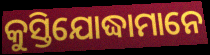
କୁସ୍ତିଯୋଦ୍ଧାମାନେ